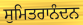
ਸੁਮਿਤਰਾਨੰਦਨ